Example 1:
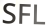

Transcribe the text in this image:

SFL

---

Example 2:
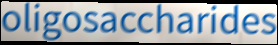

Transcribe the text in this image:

oligosaccharides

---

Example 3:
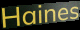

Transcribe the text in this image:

Haines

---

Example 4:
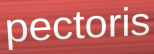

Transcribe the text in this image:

pectoris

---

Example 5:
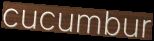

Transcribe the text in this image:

cucumbur